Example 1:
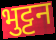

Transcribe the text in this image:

भुट्टन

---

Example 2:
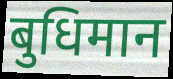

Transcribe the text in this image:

बुधिमान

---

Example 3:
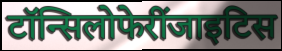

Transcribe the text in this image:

टॉन्सिलोफेरींजाइटिस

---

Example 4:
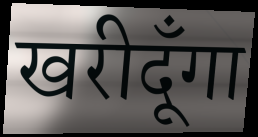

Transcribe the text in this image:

खरीदूँगा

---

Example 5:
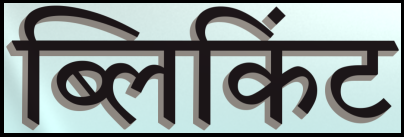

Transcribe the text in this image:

ब्लिकिंट